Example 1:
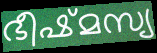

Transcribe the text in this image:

ഭീഷ്മസ്യ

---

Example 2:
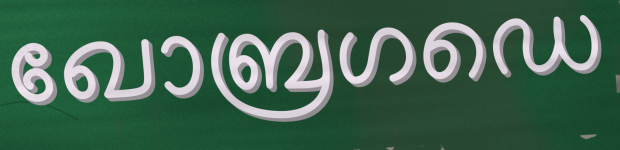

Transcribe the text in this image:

ഖോബ്രഗഡെ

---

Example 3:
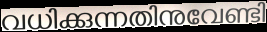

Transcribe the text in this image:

വധിക്കുന്നതിനുവേണ്ടി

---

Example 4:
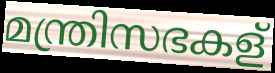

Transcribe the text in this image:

മന്ത്രിസഭകള്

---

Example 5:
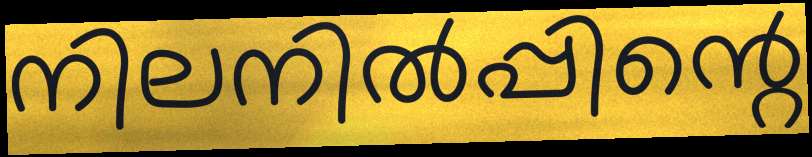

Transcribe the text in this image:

നിലനിൽപ്പിന്റെ